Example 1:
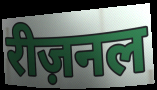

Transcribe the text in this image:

रीज़नल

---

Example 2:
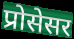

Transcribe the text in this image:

प्रोसेसर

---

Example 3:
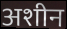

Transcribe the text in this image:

अशीन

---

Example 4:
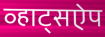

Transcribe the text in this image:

व्‍हाट्सऐप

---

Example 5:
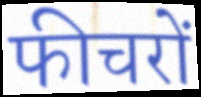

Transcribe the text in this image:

फीचरों